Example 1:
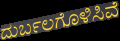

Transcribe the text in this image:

ದುರ್ಬಲಗೊಳಿಸಿವೆ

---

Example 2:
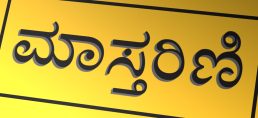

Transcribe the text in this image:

ಮಾಸ್ತರಿಣಿ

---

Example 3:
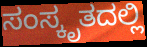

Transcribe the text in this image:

ಸಂಸ್ಕೃತದಲ್ಲಿ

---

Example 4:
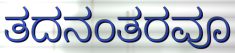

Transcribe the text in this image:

ತದನಂತರವೂ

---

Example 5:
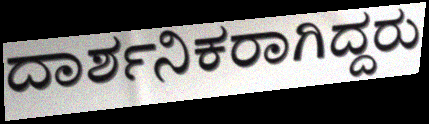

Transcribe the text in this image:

ದಾರ್ಶನಿಕರಾಗಿದ್ದರು